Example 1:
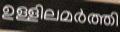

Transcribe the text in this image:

ഉള്ളിലമർത്തി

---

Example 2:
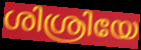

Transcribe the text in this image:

ശിശ്രിയേ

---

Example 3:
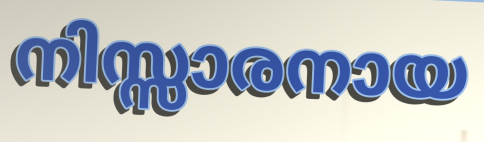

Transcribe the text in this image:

നിസ്സാരനായ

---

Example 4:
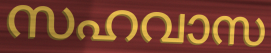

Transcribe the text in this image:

സഹവാസ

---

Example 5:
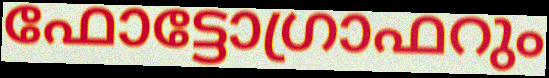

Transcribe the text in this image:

ഫോട്ടോഗ്രാഫറും